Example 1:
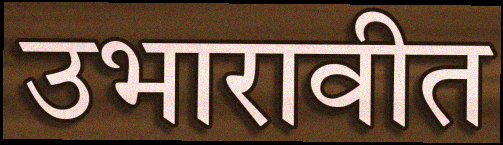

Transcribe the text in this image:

उभारावीत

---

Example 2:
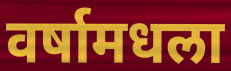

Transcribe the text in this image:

वर्षामधला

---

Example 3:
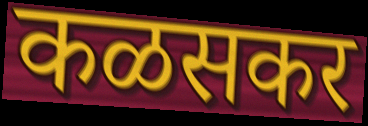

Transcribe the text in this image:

कळसकर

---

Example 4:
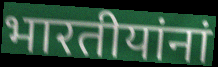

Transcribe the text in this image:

भारतीयांनां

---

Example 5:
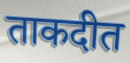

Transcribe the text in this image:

ताकदीत